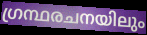
ഗ്രന്ഥരചനയിലും